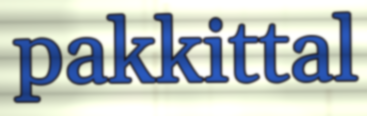
pakkittal